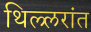
थिल्लरांत